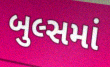
બુલ્સમાં